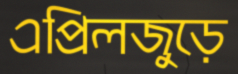
এপ্রিলজুড়ে